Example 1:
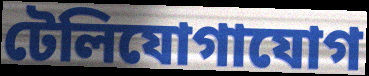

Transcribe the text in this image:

টেলিযোগাযোগ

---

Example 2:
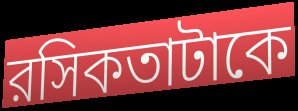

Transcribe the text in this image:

রসিকতাটাকে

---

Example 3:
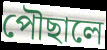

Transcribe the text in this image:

পৌছালে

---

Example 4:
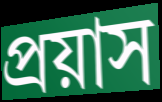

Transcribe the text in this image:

প্রয়াস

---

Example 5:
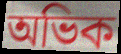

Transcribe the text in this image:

অভিক